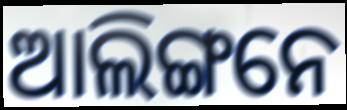
ଆଲିଙ୍ଗନେ